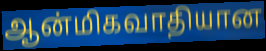
ஆன்மிகவாதியான